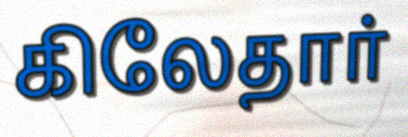
கிலேதார்